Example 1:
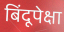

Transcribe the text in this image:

बिंदूपेक्षा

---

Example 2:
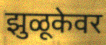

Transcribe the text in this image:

झुळूकेवर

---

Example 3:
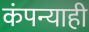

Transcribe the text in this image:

कंपन्याही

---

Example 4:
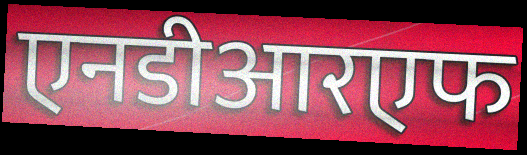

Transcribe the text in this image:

एनडीआरएफ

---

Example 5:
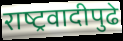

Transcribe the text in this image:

राष्ट्रवादीपुढे